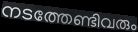
നടത്തേണ്ടിവരും